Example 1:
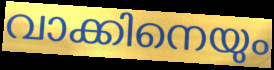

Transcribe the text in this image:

വാക്കിനെയും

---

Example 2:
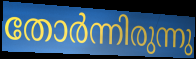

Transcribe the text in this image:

തോർന്നിരുന്നു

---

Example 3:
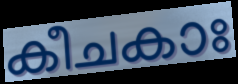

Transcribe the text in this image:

കീചകാഃ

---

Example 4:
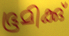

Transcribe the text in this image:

ഭൂമിക്കു്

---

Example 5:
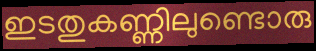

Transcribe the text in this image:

ഇടതുകണ്ണിലുണ്ടൊരു